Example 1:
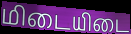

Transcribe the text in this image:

மிடையிடை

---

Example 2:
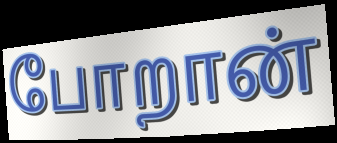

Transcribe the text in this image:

போறான்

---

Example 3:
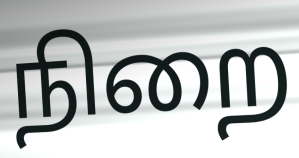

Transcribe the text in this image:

நிறை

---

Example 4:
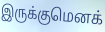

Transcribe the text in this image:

இருக்குமெனக்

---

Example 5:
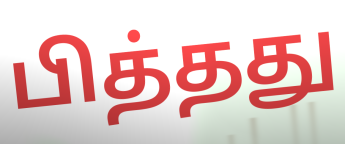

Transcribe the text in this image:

பித்தது